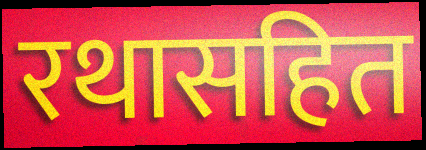
रथासहित